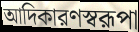
আদিকারণস্বরূপা